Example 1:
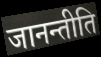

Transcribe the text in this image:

जानन्तीति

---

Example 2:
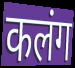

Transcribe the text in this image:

कलंग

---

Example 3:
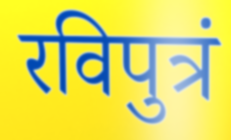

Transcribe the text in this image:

रविपुत्रं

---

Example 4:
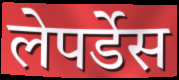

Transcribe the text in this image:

लेपर्डेस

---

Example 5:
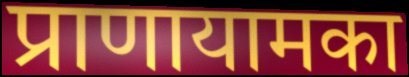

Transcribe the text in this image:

प्राणायामका